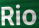
Rio